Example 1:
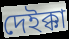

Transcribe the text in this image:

দেইক্কা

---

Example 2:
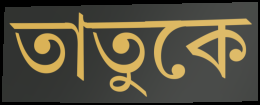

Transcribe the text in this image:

তাতুকে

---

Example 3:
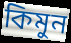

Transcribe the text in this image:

কিমুন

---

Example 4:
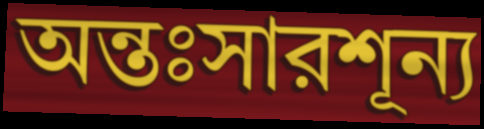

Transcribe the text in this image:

অন্তঃসারশূন্য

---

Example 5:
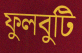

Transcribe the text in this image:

ফুলবুটি